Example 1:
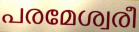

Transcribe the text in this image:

പരമേശ്വരീ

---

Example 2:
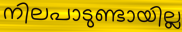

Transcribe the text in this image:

നിലപാടുണ്ടായില്ല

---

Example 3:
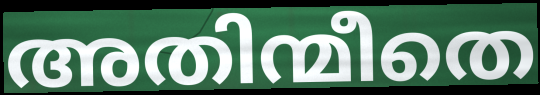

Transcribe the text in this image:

അതിന്മീതെ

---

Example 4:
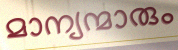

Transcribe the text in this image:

മാന്യന്മാരും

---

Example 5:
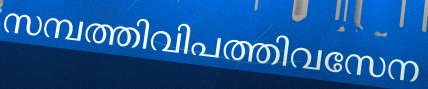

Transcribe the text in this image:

സമ്പത്തിവിപത്തിവസേന